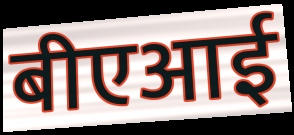
बीएआई